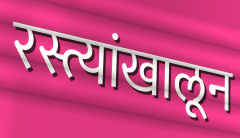
रस्त्यांखालून